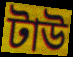
টাউ